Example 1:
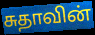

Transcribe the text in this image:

சுதாவின்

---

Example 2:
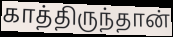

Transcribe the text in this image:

காத்திருந்தான்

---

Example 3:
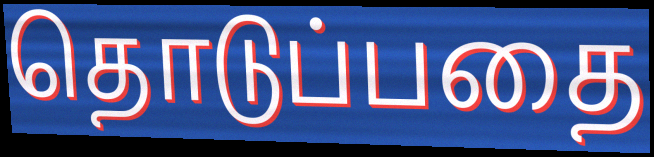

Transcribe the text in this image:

தொடுப்பதை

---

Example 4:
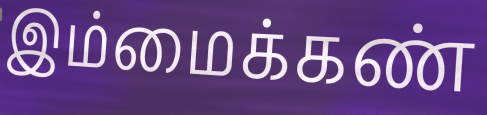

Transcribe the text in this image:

இம்மைக்கண்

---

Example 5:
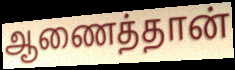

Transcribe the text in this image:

ஆணைத்தான்